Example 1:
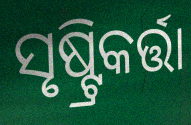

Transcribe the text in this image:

ସୃଷ୍ଟ୍ରିକର୍ତ୍ତା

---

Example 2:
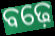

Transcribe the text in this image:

ବଢ଼େ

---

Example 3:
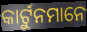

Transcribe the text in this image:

କାର୍ଟୁନମାନେ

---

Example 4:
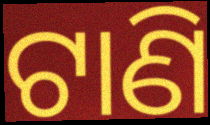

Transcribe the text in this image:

ଟାଣି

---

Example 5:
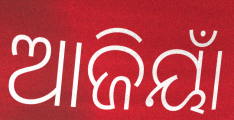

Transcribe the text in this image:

ଆଜିୟାଁ